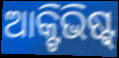
ଆକ୍ଟିଭିଷ୍ଟ୍